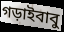
গড়াইবাবু